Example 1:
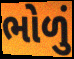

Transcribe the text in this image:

ભોળું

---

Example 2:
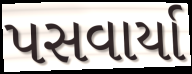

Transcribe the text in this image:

પસવાર્યા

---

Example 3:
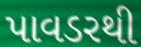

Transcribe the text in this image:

પાવડરથી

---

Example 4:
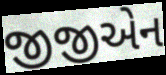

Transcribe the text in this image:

જીજીએન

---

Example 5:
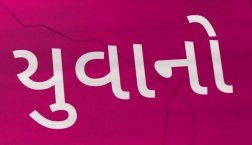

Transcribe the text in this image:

યુવાનો